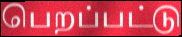
பெறப்பட்டு